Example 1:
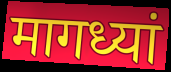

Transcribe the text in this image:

मागध्यां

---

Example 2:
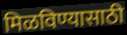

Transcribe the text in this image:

मिळविण्यासाठी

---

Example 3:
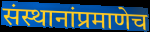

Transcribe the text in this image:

संस्थानांप्रमाणेच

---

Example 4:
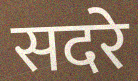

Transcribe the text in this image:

सदरे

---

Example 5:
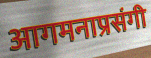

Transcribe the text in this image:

आगमनाप्रसंगी